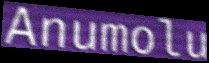
Anumolu